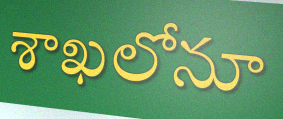
శాఖలోనూ